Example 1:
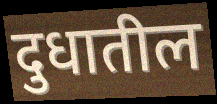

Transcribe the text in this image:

दुधातील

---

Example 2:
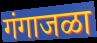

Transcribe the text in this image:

गंगाजळा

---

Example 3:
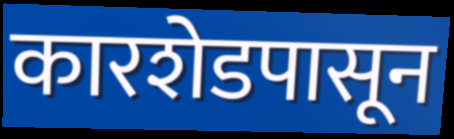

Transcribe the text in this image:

कारशेडपासून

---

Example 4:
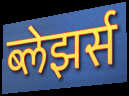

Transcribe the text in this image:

ब्लेझर्स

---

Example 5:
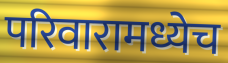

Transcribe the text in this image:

परिवारामध्येच